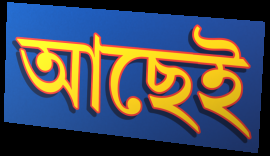
আছেই